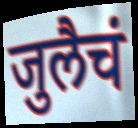
जुलैचं